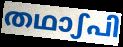
തഥാഽപി